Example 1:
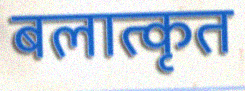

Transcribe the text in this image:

बलात्कृत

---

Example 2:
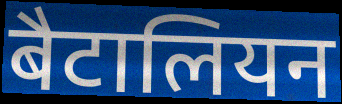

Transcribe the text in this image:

बैटालियन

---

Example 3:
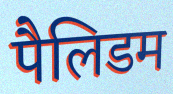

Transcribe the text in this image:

पैलिडम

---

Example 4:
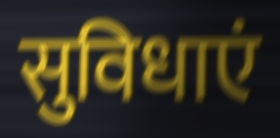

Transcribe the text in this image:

सुविधाएं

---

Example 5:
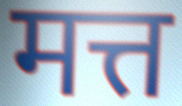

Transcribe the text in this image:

मत्त